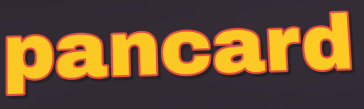
pancard